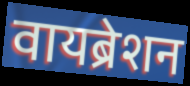
वायब्रेशन